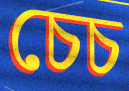
চেচ